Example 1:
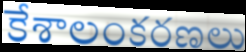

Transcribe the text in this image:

కేశాలంకరణలు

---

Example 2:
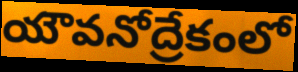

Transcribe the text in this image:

యౌవనోద్రేకంలో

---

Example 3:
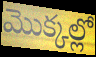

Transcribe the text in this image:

మొక్కల్లో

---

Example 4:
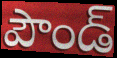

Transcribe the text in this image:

పౌండ్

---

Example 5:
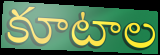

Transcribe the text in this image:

కూటాల